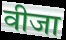
वीजा